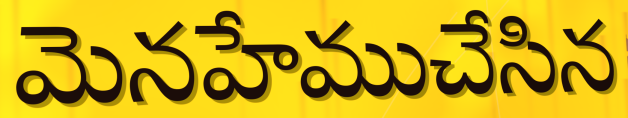
మెనహేముచేసిన